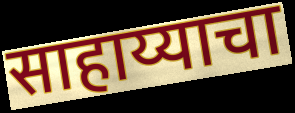
साहाय्याचा